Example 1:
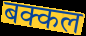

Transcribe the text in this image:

बक्कल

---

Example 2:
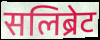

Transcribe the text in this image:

सलिब्रेट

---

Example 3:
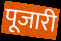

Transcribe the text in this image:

पूजारी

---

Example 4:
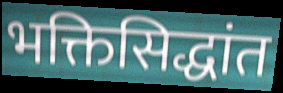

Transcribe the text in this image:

भक्तिसिद्धांत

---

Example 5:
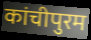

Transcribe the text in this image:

कांचीपुरम